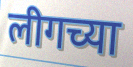
लीगच्या